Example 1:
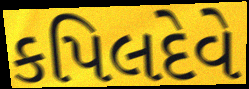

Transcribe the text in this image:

કપિલદેવે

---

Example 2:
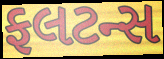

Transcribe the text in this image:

ફલટન્સ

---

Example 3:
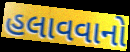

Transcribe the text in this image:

હલાવવાનો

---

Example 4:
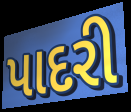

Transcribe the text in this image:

પાદરી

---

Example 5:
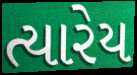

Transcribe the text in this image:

ત્યારેય